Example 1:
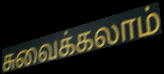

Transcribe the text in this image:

சுவைக்கலாம்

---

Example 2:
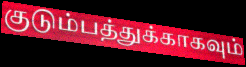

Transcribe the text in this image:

குடும்பத்துக்காகவும்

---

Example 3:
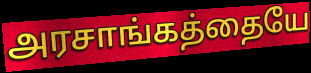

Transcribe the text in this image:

அரசாங்கத்தையே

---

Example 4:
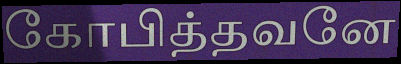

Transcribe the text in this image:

கோபித்தவனே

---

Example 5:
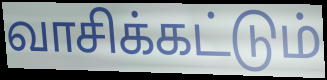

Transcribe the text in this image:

வாசிக்கட்டும்